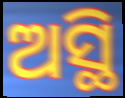
ଅସ୍ଥି